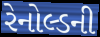
રેનોલ્ડની